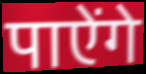
पाऐंगे